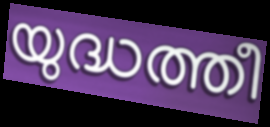
യുദ്ധത്തീ